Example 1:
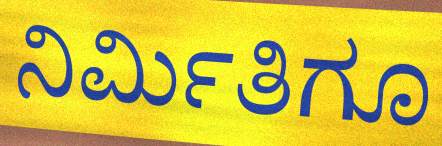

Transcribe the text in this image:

ನಿರ್ಮಿತಿಗೂ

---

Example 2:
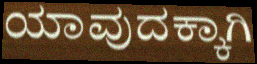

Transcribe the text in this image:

ಯಾವುದಕ್ಕಾಗಿ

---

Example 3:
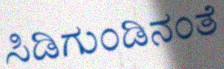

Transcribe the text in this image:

ಸಿಡಿಗುಂಡಿನಂತೆ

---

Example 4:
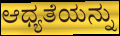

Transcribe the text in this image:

ಆಧ್ಯತೆಯನ್ನು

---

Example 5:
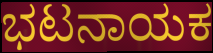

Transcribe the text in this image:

ಭಟನಾಯಕ